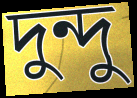
দুন্দু